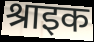
श्राइक